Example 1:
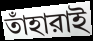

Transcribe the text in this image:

তাঁহারাই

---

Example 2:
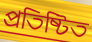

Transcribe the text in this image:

প্রতিষ্টিত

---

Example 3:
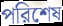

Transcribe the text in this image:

পরিশেষ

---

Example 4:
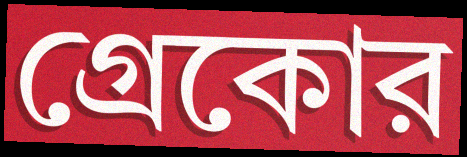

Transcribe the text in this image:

গ্রেকোর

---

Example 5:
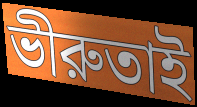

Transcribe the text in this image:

ভীরুতাই